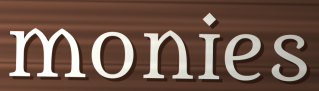
monies